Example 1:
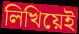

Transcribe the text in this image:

লিখিয়েই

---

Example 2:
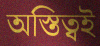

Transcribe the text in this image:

অস্তিত্বই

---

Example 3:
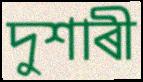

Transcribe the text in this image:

দুশাৰী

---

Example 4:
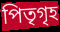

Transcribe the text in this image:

পিতৃগৃহ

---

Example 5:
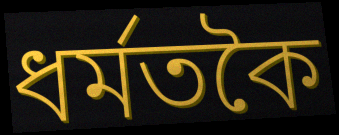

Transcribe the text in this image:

ধৰ্মতকৈ